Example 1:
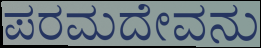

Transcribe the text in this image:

ಪರಮದೇವನು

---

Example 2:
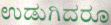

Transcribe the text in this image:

ಉಡುಗಿದರೂ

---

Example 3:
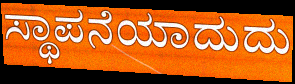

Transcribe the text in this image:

ಸ್ಥಾಪನೆಯಾದುದು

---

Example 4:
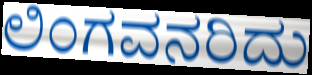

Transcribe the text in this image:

ಲಿಂಗವನರಿದು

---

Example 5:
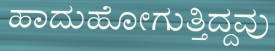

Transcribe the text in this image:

ಹಾದುಹೋಗುತ್ತಿದ್ದವು